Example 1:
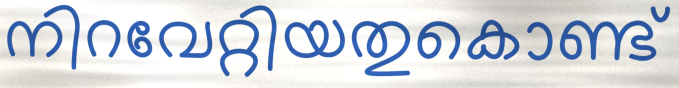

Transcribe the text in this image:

നിറവേറ്റിയതുകൊണ്ട്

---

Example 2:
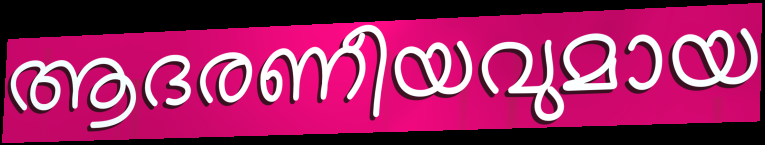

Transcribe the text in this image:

ആദരണീയവുമായ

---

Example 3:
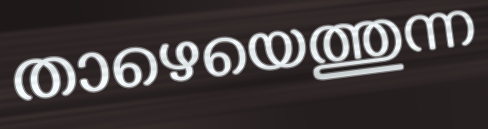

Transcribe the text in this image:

താഴെയെത്തുന്ന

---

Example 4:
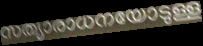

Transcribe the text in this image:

സത്യാരാധനയോടുള്ള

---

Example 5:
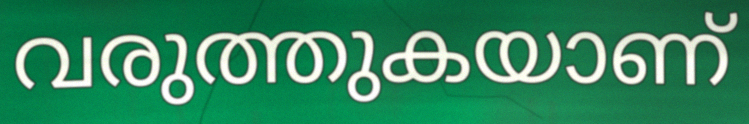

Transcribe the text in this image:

വരുത്തുകയാണ്